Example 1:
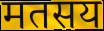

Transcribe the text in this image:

मतसय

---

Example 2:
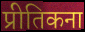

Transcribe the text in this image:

प्रीतिकना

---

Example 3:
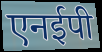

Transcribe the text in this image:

एनईपी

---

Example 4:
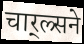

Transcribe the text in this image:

चार्ल्सने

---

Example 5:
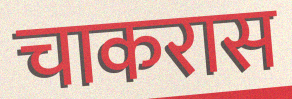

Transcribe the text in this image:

चाकरास